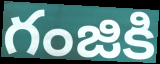
గంజికి